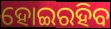
ହୋଇରହିବ